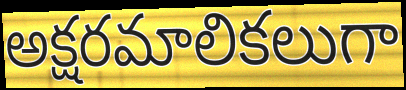
అక్షరమాలికలుగా